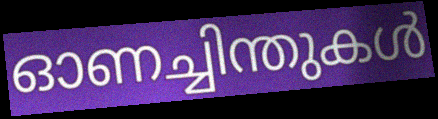
ഓണച്ചിന്തുകൾ